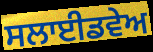
ਸਲਾਈਡਵੇਅ